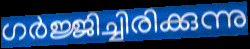
ഗർജ്ജിച്ചിരിക്കുന്നു